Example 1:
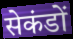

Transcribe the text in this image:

सेकंडों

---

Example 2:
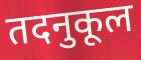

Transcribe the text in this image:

तदनुकूल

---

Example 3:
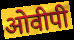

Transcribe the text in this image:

ओवीपी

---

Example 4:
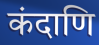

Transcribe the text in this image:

कंदाणि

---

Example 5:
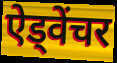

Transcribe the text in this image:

ऐड्वेंचर